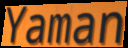
Yaman